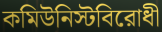
কমিউনিস্টবিরোধী